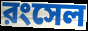
রংসেল